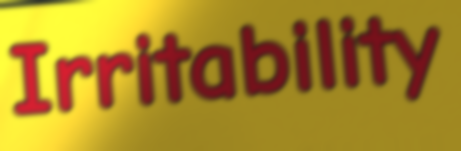
Irritability